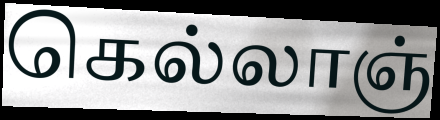
கெல்லாஞ்